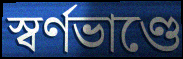
স্বর্ণভাণ্ডে